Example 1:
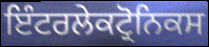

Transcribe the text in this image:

ਇੰਟਰਲੇਕਟ੍ਰੋਨਿਕਸ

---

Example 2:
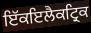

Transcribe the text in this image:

ਇੱਕਇਲੈਕਟ੍ਰਿਕ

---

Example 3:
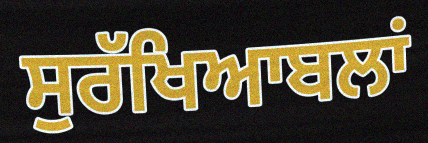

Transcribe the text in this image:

ਸੁਰੱਖਿਆਬਲਾਂ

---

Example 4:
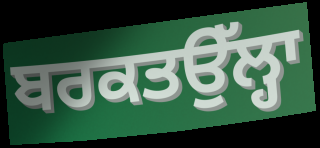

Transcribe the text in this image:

ਬਰਕਤਉੱਲ੍ਹਾ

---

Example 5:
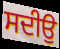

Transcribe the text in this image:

ਸਦੀਉ